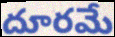
దూరమే